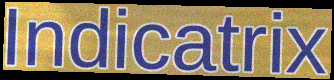
Indicatrix